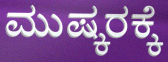
ಮುಷ್ಕರಕ್ಕೆ